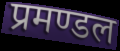
प्रमण्डल